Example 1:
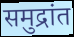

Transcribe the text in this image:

समुद्रांत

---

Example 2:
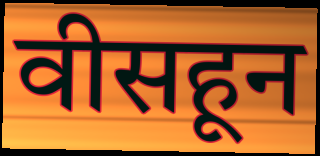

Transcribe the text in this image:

वीसहून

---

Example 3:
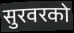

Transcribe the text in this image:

सुरवरको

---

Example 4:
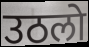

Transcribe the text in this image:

उठलो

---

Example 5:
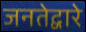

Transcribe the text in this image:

जनतेद्वारे